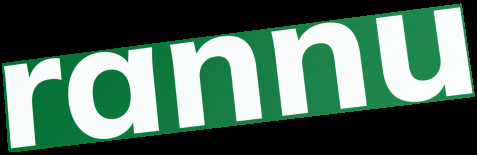
rannu